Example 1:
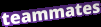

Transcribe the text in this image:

teammates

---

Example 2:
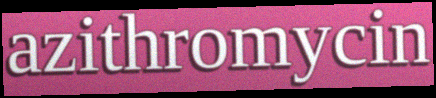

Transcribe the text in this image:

azithromycin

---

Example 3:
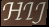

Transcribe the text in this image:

HIJ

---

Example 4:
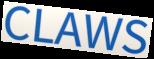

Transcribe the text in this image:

CLAWS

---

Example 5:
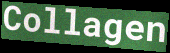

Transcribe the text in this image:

Collagen